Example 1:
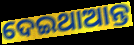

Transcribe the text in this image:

ଦେଇଥାଆନ୍ତ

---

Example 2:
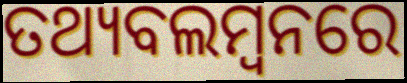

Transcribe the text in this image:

ତଥ୍ୟବଲମ୍ବନରେ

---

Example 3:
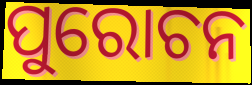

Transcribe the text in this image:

ପୁରୋଚନ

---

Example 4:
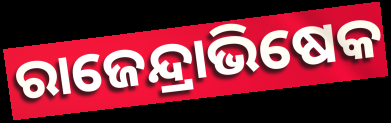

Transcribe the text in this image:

ରାଜେନ୍ଦ୍ରାଭିଷେକ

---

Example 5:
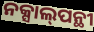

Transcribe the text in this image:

ନକ୍ସାଲ୍‌ପନ୍ଥୀ